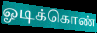
ஓடிக்கொண்